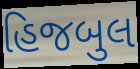
હિજબુલ